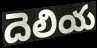
దెలియ